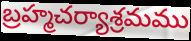
బ్రహ్మచర్యాశ్రమము